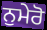
ਨੁਮੇਰੋ